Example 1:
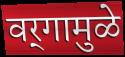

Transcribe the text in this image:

वर्गामुळे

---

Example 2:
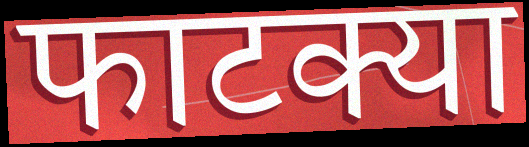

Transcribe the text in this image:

फाटक्या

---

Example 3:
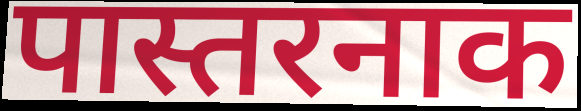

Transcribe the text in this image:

पास्तरनाक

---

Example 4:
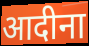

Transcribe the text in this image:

आदीना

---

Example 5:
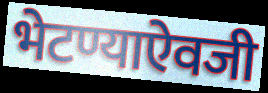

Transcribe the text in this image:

भेटण्याऐवजी